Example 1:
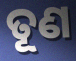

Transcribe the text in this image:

ତୂଣ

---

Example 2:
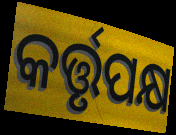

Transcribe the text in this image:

କର୍ତ୍ତୃପକ୍ଷ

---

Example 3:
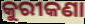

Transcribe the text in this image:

କୁରୀକଣା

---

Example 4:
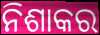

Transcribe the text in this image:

ନିଶାକର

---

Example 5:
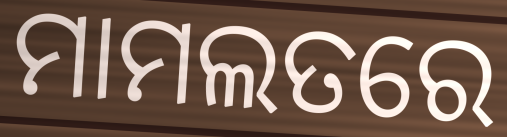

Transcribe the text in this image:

ମାମଲତରେ